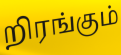
றிரங்கும்